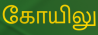
கோயிலு